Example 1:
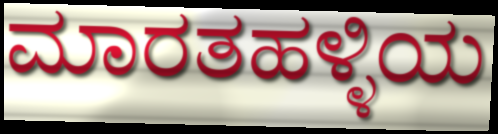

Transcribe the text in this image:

ಮಾರತಹಳ್ಳಿಯ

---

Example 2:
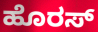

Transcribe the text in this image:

ಹೊರಸ್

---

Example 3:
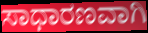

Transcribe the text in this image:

ಸಾಧಾರಣವಾಗಿ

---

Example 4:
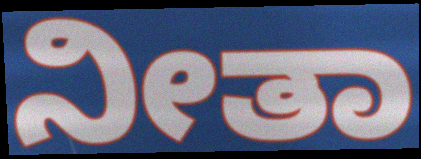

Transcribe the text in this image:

ನೀತಾ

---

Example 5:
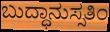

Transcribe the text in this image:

ಬುದ್ಧಾನುಸ್ಸತಿಂ